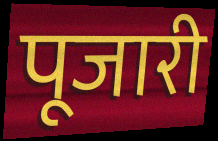
पूजारी